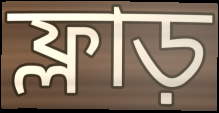
ফ্লাড়